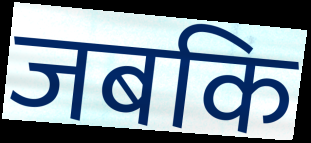
जबकि